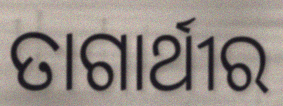
ତାଗାର୍ଥୀର